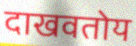
दाखवतोय